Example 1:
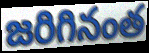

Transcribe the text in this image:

జరిగినంత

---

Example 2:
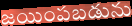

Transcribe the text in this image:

జయింపబడును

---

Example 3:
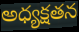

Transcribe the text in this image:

అధ్యక్షతన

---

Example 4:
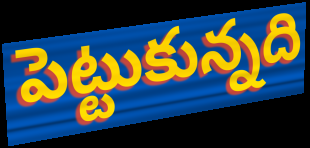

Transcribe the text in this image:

పెట్టుకున్నది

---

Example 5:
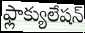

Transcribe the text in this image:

ఫ్లాక్యులేషన్